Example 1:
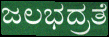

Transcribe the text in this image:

ಜಲಭದ್ರತೆ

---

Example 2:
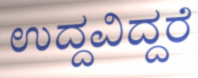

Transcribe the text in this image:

ಉದ್ದವಿದ್ದರೆ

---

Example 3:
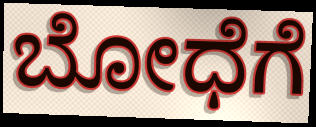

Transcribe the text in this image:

ಬೋಧೆಗೆ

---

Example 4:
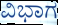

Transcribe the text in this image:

ವಿಭಾಗ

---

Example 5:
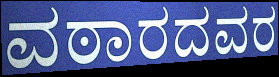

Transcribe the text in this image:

ವಠಾರದವರ